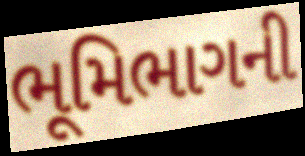
ભૂમિભાગની